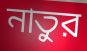
নাতুর